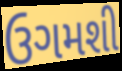
ઉગમશી